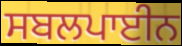
ਸਬਲਪਾਈਨ